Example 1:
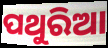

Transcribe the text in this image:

ପଥୁରିଆ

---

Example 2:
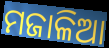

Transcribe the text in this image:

ମଜାଳିଆ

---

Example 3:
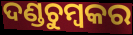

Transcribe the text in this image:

ଦଣ୍ଡଚୁମ୍ବକର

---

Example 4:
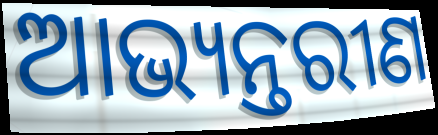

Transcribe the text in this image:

ଆଭ୍ୟନ୍ତରୀଣ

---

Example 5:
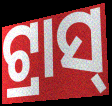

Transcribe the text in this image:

ଟ୍ରାସ୍